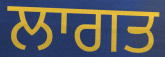
ਲਾਗਤ